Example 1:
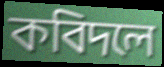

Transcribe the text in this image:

কবিদলে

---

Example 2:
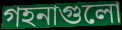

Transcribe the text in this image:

গহনাগুলো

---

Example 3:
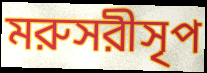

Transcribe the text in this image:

মরুসরীসৃপ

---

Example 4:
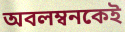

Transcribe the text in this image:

অবলম্বনকেই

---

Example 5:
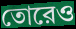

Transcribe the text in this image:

তোরেও